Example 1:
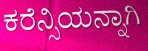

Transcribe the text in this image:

ಕರೆನ್ಸಿಯನ್ನಾಗಿ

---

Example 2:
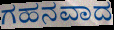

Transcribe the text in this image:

ಗಹನವಾದ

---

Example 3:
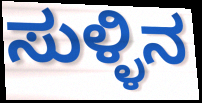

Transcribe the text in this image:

ಸುಳ್ಳಿನ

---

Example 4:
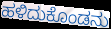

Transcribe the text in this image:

ಹಳಿದುಕೊಂಡನು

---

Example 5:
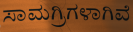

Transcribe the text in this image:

ಸಾಮಗ್ರಿಗಳಾಗಿವೆ